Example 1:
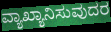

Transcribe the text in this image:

ವ್ಯಾಖ್ಯಾನಿಸುವುದರ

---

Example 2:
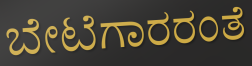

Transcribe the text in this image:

ಬೇಟೆಗಾರರಂತೆ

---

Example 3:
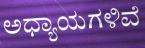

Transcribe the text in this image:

ಅಧ್ಯಾಯಗಳಿವೆ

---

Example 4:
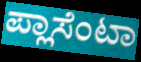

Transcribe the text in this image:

ಪ್ಲಾಸೆಂಟಾ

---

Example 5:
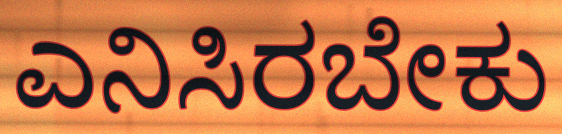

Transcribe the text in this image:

ಎನಿಸಿರಬೇಕು